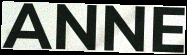
ANNE